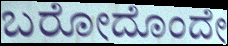
ಬರೋದೊಂದೇ